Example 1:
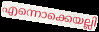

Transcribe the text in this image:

എന്നൊക്കെയല്ലി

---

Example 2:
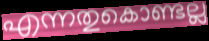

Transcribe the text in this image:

എന്നതുകൊണ്ടല്ല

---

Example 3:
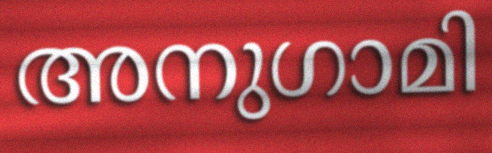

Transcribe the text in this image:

അനുഗാമി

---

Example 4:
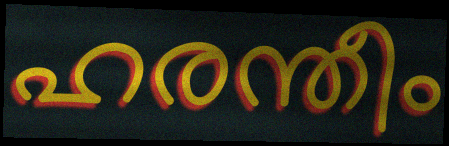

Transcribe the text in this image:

ഹരന്തീം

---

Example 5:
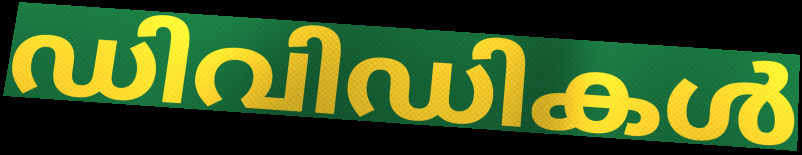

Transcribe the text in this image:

ഡിവിഡികൾ